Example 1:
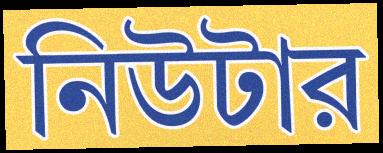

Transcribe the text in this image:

নিউটার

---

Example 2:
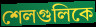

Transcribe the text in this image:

শেলগুলিকে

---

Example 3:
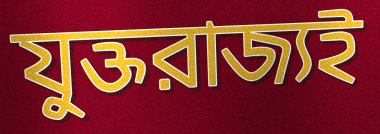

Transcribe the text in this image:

যুক্তরাজ্যই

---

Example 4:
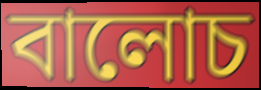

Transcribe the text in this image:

বালোচ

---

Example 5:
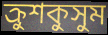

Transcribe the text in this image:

ক্রুশকুসুম